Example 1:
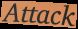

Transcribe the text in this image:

Attack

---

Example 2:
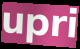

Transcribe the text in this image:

upri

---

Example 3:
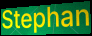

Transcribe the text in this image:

Stephan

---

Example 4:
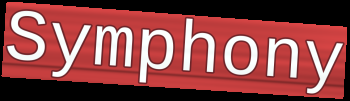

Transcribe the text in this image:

Symphony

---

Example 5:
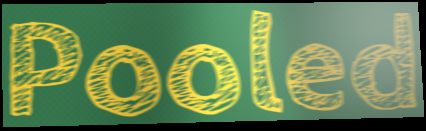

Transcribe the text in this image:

Pooled